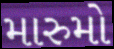
મારુમો